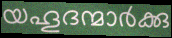
യഹൂദന്മാർക്കു